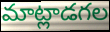
మాట్లాడగల